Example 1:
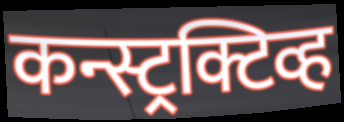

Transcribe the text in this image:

कन्स्ट्रक्टिव्ह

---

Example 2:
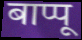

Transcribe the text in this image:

बाप्पू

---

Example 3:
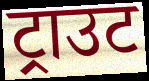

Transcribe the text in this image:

ट्राउट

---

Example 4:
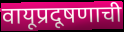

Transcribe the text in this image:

वायूप्रदूषणाची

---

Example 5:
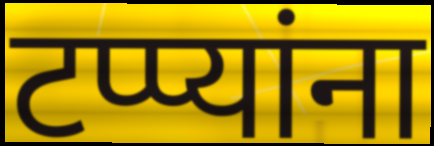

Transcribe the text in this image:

टप्प्यांना